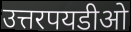
उत्तरपयडीओ